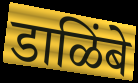
डाळिंबे